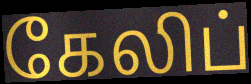
கேலிப்